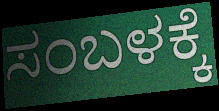
ಸಂಬಳಕ್ಕೆ